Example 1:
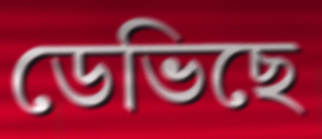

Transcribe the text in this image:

ডেভিছে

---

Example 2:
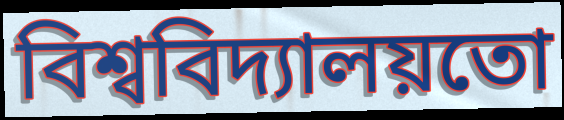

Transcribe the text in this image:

বিশ্ববিদ্যালয়তো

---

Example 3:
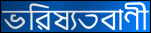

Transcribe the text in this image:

ভৱিষ্যতবাণী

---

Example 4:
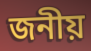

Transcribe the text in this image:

জনীয়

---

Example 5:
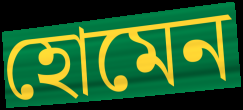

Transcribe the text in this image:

হোমেন